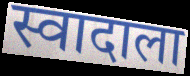
स्वादाला